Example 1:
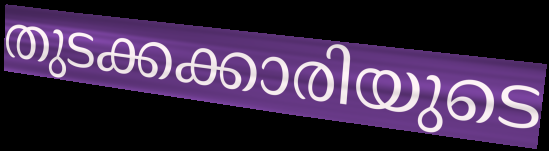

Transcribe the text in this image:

തുടക്കക്കാരിയുടെ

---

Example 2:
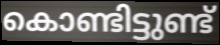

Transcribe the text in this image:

കൊണ്ടിട്ടുണ്ട്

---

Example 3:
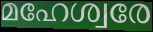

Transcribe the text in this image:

മഹേശ്വരേ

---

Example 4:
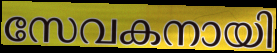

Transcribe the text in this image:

സേവകനായി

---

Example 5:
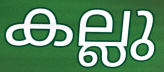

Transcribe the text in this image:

കല്ലു